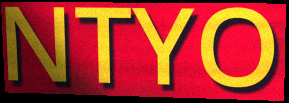
NTYO